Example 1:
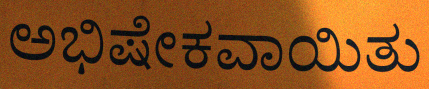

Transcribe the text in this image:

ಅಭಿಷೇಕವಾಯಿತು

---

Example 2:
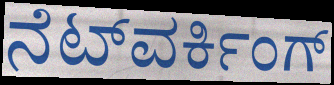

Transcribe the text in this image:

ನೆಟ್‌ವರ್ಕಿಂಗ್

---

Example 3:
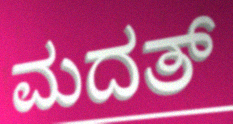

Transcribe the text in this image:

ಮದತ್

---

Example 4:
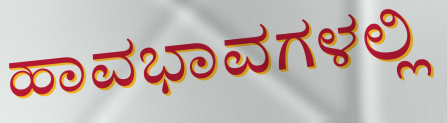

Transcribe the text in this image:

ಹಾವಭಾವಗಳಲ್ಲಿ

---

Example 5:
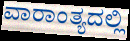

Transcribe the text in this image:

ವಾರಾಂತ್ಯದಲ್ಲಿ